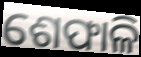
ଶେଫାଳି